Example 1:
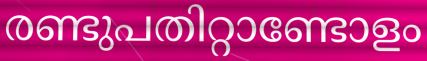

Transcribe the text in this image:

രണ്ടുപതിറ്റാണ്ടോളം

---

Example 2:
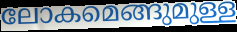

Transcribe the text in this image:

ലോകമെങ്ങുമുള്ള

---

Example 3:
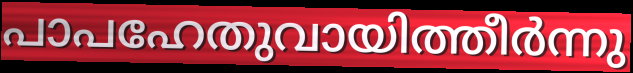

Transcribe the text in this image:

പാപഹേതുവായിത്തീർന്നു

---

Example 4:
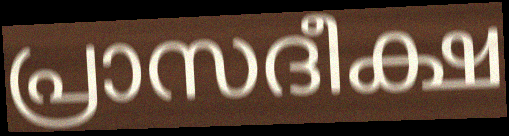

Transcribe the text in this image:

പ്രാസദീക്ഷ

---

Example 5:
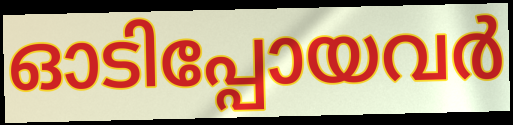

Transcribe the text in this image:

ഓടിപ്പോയവർ